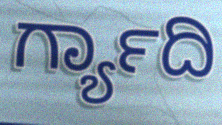
ರ್ಗ್ಯಾದಿ